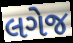
લગેજ